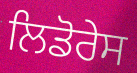
ਲਿਡੋਰੇਸ